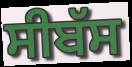
ਸੀਬੱਸ